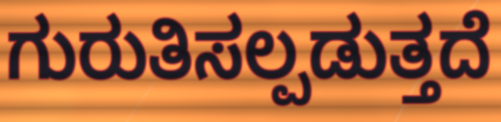
ಗುರುತಿಸಲ್ಪಡುತ್ತದೆ